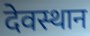
देवस्थान